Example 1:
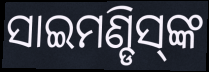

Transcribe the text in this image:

ସାଇମଣ୍ଡିସ୍‍ଙ୍କ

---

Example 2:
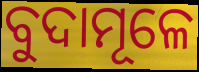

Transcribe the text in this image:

ବୁଦାମୂଳେ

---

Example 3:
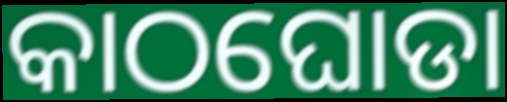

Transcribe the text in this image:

କାଠଘୋଡା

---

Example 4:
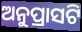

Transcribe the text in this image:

ଅନୁପ୍ରାସଟି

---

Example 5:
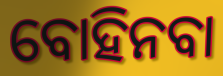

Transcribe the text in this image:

ବୋହିନବା